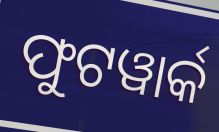
ଫୁଟୱାର୍କ